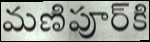
మణిపూర్‌కి